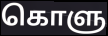
கொளு